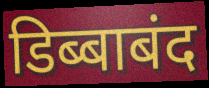
डिब्बाबंद